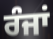
ਰੰਜਾਂ